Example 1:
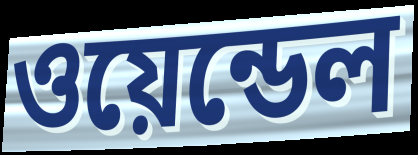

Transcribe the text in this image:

ওয়েন্ডেল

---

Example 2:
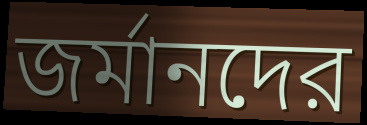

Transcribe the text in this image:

জর্মানদের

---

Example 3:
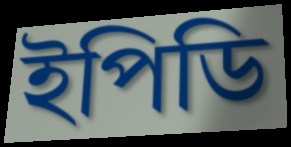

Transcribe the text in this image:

ইপিডি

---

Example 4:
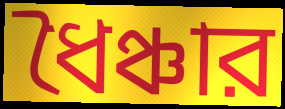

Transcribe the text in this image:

ধৈঞ্চার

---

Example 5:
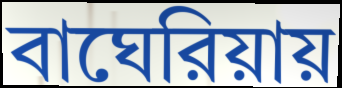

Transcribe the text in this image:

বাঘেরিয়ায়